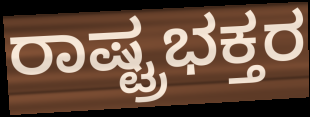
ರಾಷ್ಟ್ರಭಕ್ತರ